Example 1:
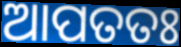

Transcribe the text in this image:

ଆପତତଃ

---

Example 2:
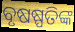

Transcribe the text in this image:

ବୃଷଷ୍ପତିଙ୍କ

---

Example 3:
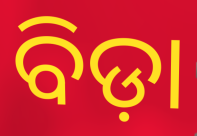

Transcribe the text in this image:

ବିଡ଼ା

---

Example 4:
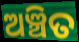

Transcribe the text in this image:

ଅଞ୍ଚିତ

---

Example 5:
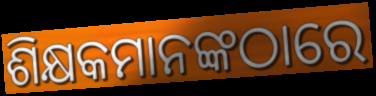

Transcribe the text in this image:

ଶିକ୍ଷକମାନଙ୍କଠାରେ